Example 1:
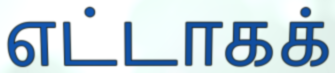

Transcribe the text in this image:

எட்டாகக்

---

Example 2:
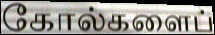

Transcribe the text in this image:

கோல்களைப்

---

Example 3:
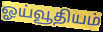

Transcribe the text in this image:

ஓய்வூதியம்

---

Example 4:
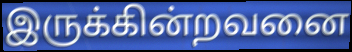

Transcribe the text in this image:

இருக்கின்றவனை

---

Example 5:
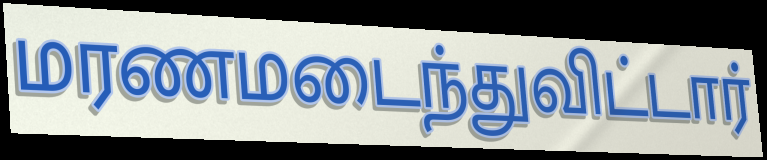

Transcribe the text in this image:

மரணமடைந்துவிட்டார்